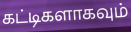
கட்டிகளாகவும்